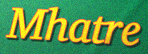
Mhatre